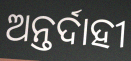
ଅନ୍ତର୍ଦାହୀ